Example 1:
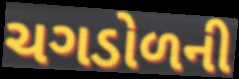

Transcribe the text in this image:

ચગડોળની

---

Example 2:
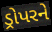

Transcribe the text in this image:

ડ્રોપરને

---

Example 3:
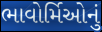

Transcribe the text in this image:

ભાવોર્મિઓનું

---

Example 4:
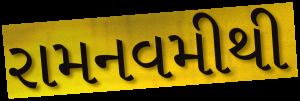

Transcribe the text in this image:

રામનવમીથી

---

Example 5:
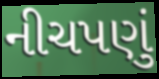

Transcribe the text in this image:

નીચપણું